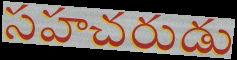
సహచరుడు